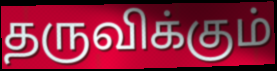
தருவிக்கும்